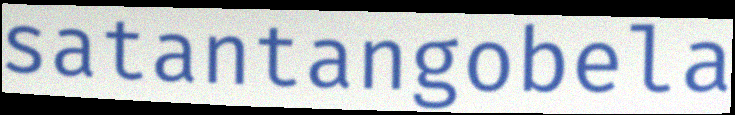
satantangobela